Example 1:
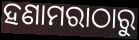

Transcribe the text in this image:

ହଣାମରାଠାରୁ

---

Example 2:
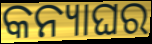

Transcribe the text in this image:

କନ୍ୟାଘର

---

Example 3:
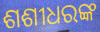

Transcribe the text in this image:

ଶଶୀଧରଙ୍କ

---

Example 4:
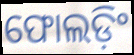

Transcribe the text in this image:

ଫୋଲଡ଼ିଂ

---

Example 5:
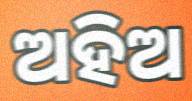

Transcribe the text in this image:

ଅହିଅ